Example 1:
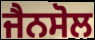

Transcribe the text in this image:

ਜੈਨਸੋਲ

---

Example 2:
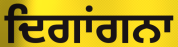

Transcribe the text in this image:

ਦਿਗਾਂਗਨਾ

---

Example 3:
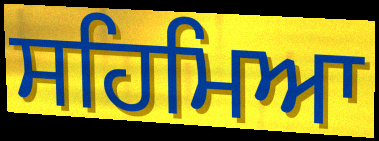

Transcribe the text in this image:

ਸਹਿਮਿਆ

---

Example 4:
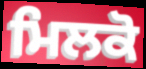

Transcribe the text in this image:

ਮਿਲਕੋ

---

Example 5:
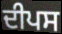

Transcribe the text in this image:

ਦੀਪਸ